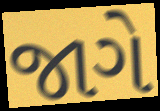
જાગે